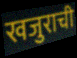
खजुराची